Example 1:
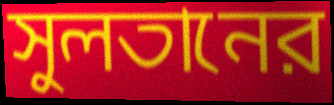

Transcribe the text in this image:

সুলতানের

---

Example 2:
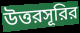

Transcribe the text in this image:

উত্তরসূরির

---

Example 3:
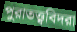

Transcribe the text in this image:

পুরাতত্ত্ববিদরা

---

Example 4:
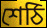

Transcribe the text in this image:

শেঠি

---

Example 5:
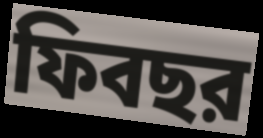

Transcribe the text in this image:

ফিবছর